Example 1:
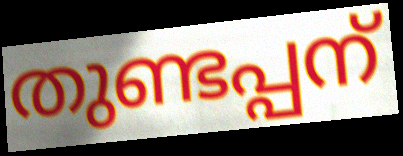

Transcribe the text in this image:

തുണ്ടപ്പന്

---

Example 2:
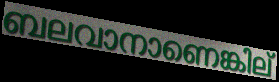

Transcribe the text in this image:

ബലവാനാണെങ്കില്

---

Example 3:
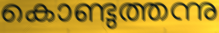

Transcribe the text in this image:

കൊണ്ടുത്തന്നു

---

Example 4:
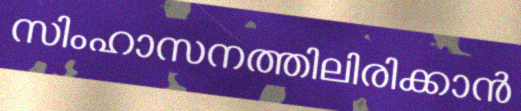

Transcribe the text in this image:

സിംഹാസനത്തിലിരിക്കാൻ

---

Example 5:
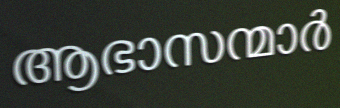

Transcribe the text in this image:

ആഭാസന്മാർ